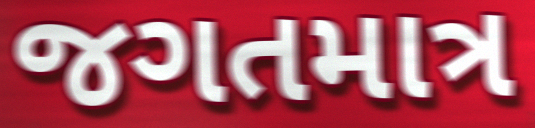
જગતમાત્ર